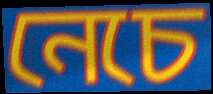
নেচে